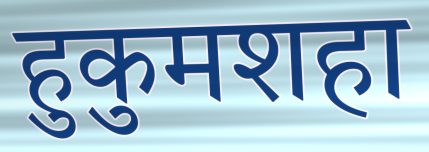
हुकुमशहा